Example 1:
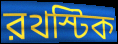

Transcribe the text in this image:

রথস্টিক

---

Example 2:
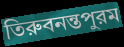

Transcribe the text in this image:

তিরুবনন্তপুরম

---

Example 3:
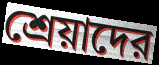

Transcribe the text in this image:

শ্রেয়াদের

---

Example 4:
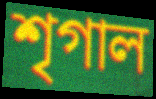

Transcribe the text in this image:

শৃগাল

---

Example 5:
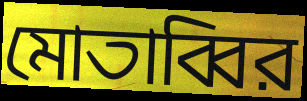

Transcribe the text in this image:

মোতাব্বির